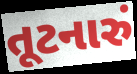
તૂટનારું